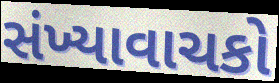
સંખ્યાવાચકો